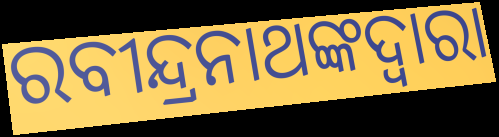
ରବୀନ୍ଦ୍ରନାଥଙ୍କଦ୍ୱାରା